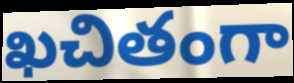
ఖచితంగా